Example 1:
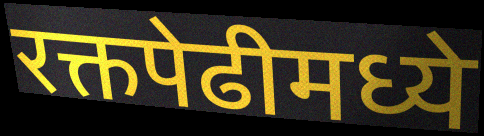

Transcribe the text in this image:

रक्तपेढीमध्ये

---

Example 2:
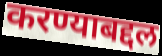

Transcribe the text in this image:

करण्याबद्दल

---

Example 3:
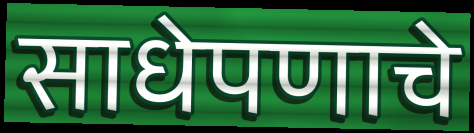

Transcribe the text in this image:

साधेपणाचे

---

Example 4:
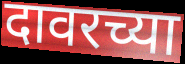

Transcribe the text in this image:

दावरच्या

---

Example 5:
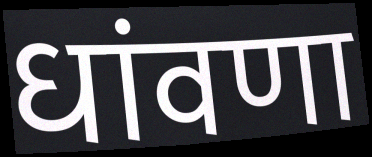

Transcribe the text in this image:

धांवणा